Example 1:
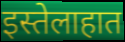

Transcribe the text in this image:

इस्तेलाहात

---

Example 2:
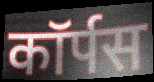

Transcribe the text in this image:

कॉर्पस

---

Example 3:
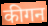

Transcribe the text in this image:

कीगन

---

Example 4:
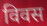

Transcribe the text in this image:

विवस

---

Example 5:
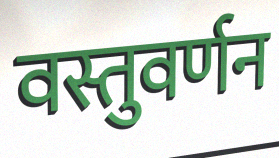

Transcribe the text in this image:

वस्तुवर्णन